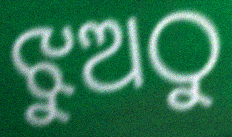
ଝୁଅଠୁ